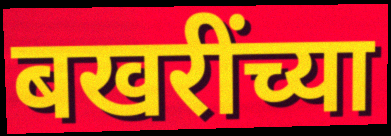
बखरींच्या